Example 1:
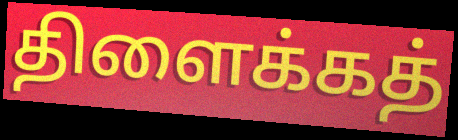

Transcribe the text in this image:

திளைக்கத்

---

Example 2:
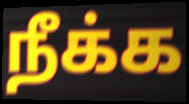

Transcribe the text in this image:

நீக்க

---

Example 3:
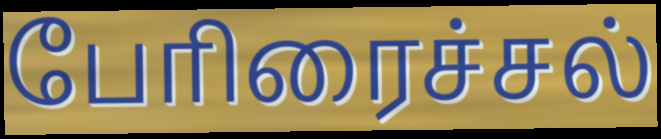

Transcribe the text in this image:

பேரிரைச்சல்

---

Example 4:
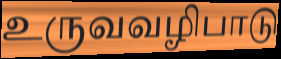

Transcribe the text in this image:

உருவவழிபாடு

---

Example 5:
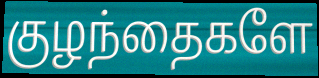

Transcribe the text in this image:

குழந்தைகளே